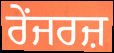
ਰੇਂਜਰਜ਼